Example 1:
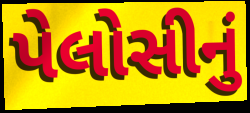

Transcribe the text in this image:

પેલોસીનું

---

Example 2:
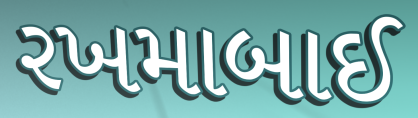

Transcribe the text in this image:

રખમાબાઈ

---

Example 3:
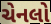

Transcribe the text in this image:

ચેનલો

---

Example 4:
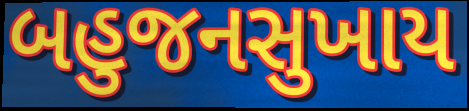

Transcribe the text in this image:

બહુજનસુખાય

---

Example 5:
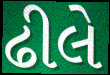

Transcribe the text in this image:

ઢીલે